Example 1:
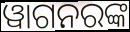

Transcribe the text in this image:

ୱାଗନରଙ୍କ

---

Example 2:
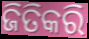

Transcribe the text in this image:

ଜିତିକରି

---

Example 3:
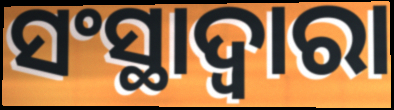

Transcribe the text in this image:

ସଂସ୍ଥାଦ୍ଵାରା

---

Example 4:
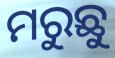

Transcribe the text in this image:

ମରୁଛୁ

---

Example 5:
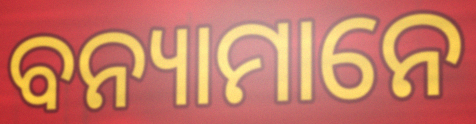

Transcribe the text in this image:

ବନ୍ୟାମାନେ